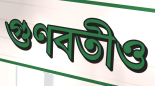
গুণবতীও